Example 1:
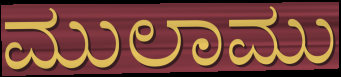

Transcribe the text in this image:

ಮುಲಾಮು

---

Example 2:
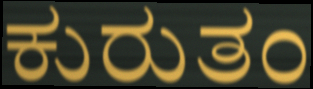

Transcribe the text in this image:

ಕುರುತಂ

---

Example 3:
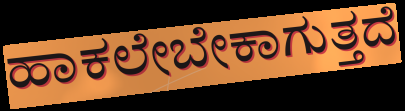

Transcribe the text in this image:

ಹಾಕಲೇಬೇಕಾಗುತ್ತದೆ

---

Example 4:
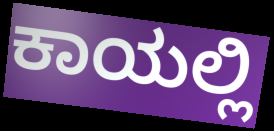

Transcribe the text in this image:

ಕಾಯಲ್ಲಿ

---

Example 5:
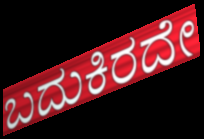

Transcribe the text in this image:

ಬದುಕಿರದೇ